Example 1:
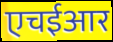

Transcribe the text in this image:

एचईआर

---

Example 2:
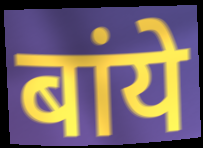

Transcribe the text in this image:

बांये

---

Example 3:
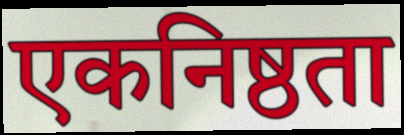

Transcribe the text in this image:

एकनिष्ठता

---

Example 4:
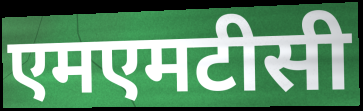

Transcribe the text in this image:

एमएमटीसी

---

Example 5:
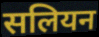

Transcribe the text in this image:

सलियन